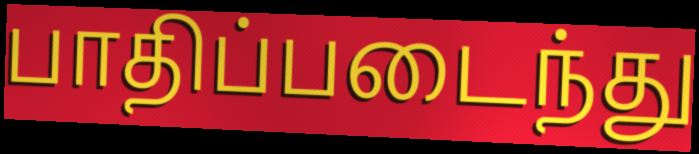
பாதிப்படைந்து